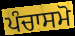
ਪੰਚਾਸਮੋ